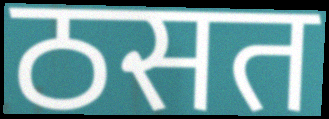
ठसत